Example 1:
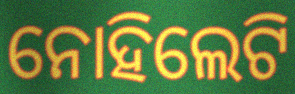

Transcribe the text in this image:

ନୋହିଲେଟି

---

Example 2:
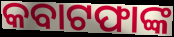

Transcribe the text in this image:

କବାଟଫାଙ୍କ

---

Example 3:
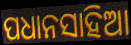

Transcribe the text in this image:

ପଧାନସାହିଆ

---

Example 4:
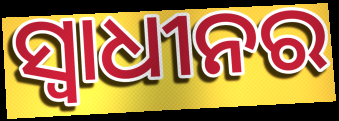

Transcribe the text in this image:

ସ୍ୱାଧୀନର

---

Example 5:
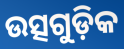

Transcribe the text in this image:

ଉତ୍ସଗୁଡ଼ିକ